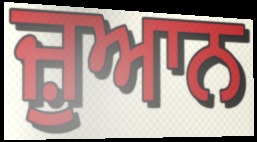
ਜ਼ੁਆਨ